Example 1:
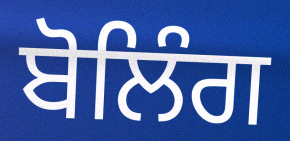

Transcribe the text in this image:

ਬੋਲਿੰਗ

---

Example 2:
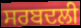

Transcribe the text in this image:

ਸਰਬਦਲੀ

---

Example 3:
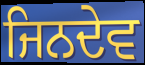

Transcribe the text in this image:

ਜਿਨਦੇਵ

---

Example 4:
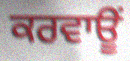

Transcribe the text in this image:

ਕਰਵਾਊਂ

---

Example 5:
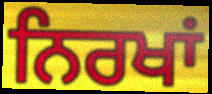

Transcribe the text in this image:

ਨਿਰਖਾਂ